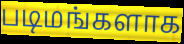
படிமங்களாக